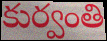
కుర్వంతి